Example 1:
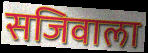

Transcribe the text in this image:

सजिवाला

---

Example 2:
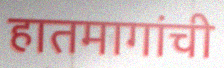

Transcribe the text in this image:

हातमागांची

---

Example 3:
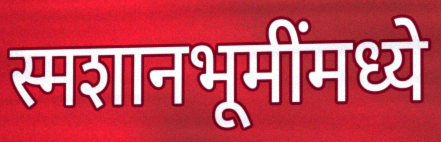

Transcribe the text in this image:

स्मशानभूमींमध्ये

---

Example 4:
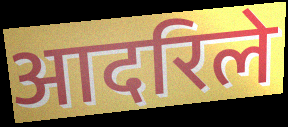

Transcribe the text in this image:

आदरिले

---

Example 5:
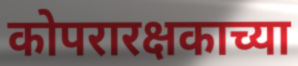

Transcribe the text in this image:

कोपरारक्षकाच्या